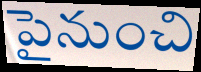
పైనుంచి